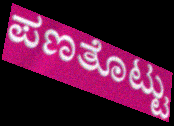
ಪಣತೊಟ್ಟು